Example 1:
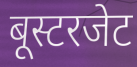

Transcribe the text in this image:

बूस्टरजेट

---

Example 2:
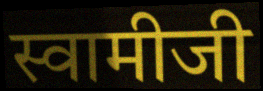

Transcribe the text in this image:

स्‍वामीजी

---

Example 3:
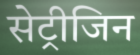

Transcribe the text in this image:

सेट्रीजिन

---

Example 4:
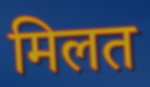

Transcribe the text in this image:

मिलत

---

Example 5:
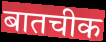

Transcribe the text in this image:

बातचीक